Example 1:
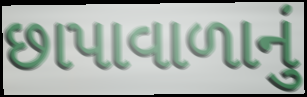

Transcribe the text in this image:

છાપાવાળાનું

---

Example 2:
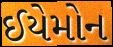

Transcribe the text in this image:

ઈયેમોન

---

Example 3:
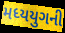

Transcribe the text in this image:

મધ્યયુગની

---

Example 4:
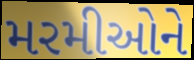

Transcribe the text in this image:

મરમીઓને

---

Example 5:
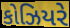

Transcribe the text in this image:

કોઝિયરે